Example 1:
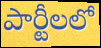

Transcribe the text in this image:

పార్టీలలో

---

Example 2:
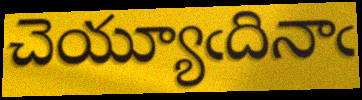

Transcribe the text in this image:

చెయ్యూఁదినాఁ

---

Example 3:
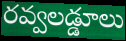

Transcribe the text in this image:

రవ్వలడ్డూలు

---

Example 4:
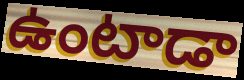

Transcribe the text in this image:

ఉంటాడా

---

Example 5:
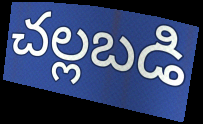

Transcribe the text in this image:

చల్లబడి